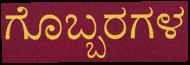
ಗೊಬ್ಬರಗಳ